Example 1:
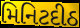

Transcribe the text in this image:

મિનિટદીઠ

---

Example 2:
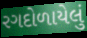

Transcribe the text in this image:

રગદોળાયેલું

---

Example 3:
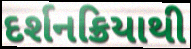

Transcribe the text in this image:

દર્શનક્રિયાથી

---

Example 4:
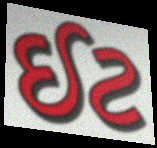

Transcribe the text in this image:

ઈટ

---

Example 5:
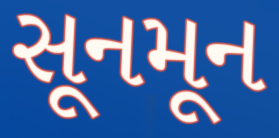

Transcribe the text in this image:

સૂનમૂન